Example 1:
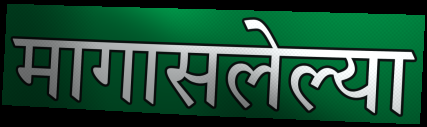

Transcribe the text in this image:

मागासलेल्या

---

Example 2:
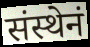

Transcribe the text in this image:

संस्थेनं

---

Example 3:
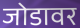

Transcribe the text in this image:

जोडावर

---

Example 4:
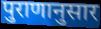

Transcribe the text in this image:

पुराणानुसार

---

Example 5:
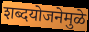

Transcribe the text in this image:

शब्दयोजनेमुळे